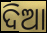
ଦିଆ